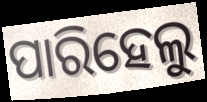
ପାରିହେଲୁ